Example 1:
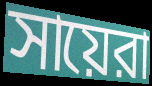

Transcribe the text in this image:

সায়েরা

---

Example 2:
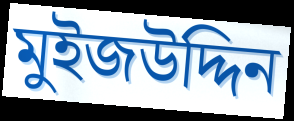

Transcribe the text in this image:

মুইজউদ্দিন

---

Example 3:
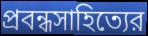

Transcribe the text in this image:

প্রবন্ধসাহিত্যের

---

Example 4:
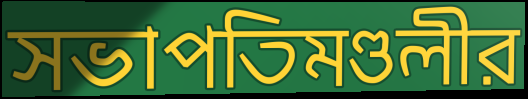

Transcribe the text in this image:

সভাপতিমণ্ডলীর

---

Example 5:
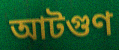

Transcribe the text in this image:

আটগুণ